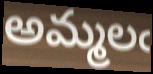
అమ్మలఁ